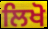
ਲਿਖੋ